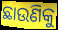
ଛାଉଣିକୁ